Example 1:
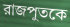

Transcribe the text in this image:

রাজপুতকে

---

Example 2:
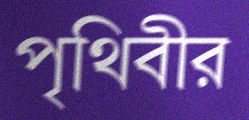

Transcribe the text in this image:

পৃথিবীর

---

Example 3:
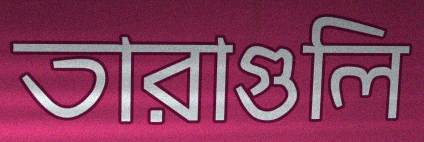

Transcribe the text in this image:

তারাগুলি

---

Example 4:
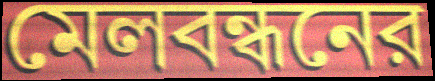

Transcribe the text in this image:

মেলবন্ধনের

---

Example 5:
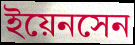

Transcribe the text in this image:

ইয়েনসেন